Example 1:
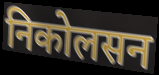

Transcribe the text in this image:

निकोलसन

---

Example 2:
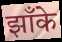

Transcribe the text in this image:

झाँके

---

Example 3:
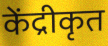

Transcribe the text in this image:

केंद्रीकृत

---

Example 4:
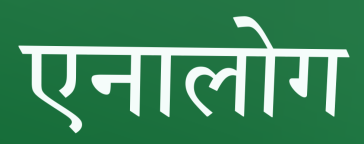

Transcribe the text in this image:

एनालोग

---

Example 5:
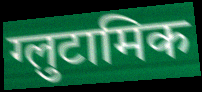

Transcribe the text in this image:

ग्लुटामिक